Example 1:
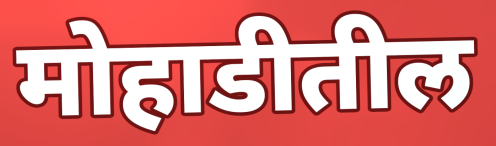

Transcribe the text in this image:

मोहाडीतील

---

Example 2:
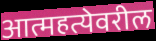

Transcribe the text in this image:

आत्महत्येवरील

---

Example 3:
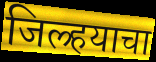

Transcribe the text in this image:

जिल्हयाचा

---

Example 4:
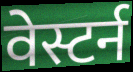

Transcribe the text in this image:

वेस्टर्न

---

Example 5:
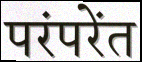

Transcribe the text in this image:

परंपरेंत